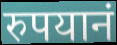
रुपयानं